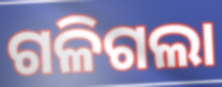
ଗଳିଗଲା